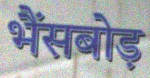
भैंसबोड़